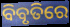
ବିବୃତିରେ